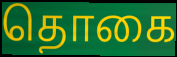
தொகை